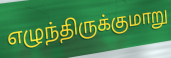
எழுந்திருக்குமாறு